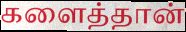
களைத்தான்